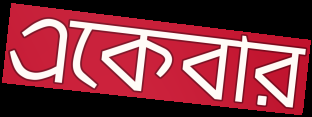
একেবার